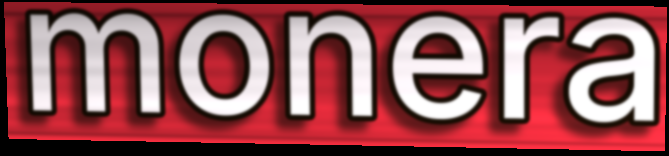
monera